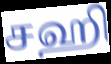
சஹி